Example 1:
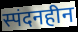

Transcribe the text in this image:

स्पंदनहीन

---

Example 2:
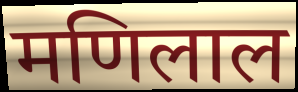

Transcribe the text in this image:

मणिलाल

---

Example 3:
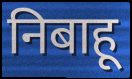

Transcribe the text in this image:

निबाहू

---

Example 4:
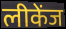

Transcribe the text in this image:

लीकेंज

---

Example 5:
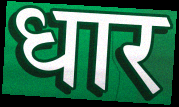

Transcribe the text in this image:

धार